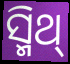
ସ୍ମିଥ୍